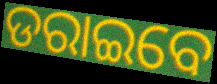
ଡରାଇବେ